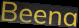
Beena